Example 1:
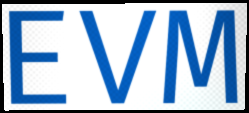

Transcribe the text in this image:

EVM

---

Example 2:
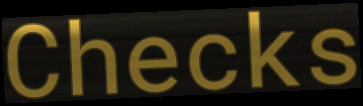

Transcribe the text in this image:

Checks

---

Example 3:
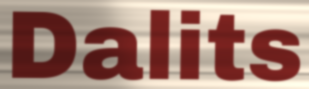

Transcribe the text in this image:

Dalits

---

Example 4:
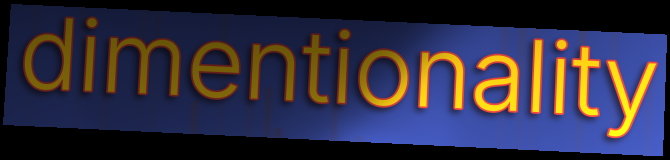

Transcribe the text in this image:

dimentionality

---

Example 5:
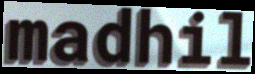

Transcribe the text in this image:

madhil